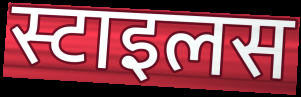
स्टाइलस